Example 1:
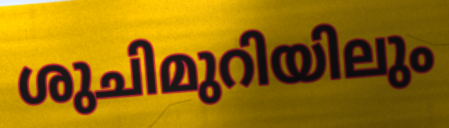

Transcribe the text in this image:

ശുചിമുറിയിലും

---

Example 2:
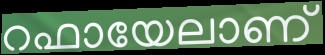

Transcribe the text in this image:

റഫായേലാണ്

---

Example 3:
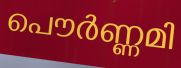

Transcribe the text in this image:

പൌർണ്ണമി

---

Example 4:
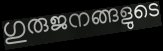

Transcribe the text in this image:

ഗുരുജനങ്ങളുടെ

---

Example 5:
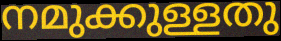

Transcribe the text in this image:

നമുക്കുള്ളതു